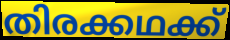
തിരക്കഥക്ക്